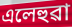
এলেহুৱা